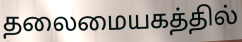
தலைமையகத்தில்